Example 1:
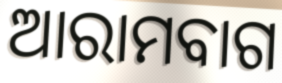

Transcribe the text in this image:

ଆରାମବାଗ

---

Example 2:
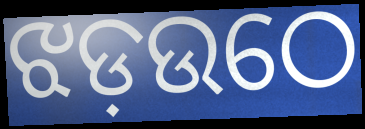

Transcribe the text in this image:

ଝଡ଼ଉଠେ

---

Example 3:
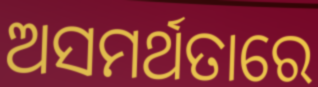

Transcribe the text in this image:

ଅସମର୍ଥତାରେ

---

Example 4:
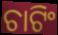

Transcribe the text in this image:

ଚାଟିଂ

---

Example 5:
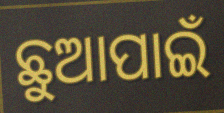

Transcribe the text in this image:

ଛୁଆପାଇଁ